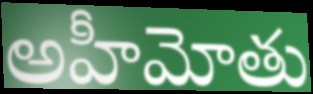
అహీమోతు